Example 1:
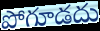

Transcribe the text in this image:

పోగూడదు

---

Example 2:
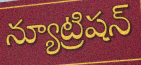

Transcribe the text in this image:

న్యూట్రిషన్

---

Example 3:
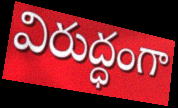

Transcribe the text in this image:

విరుద్ధంగా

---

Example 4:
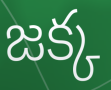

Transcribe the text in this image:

జక్క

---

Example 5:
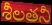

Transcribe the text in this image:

శీలతనీ